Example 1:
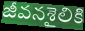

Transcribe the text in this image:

జీవనశైలికి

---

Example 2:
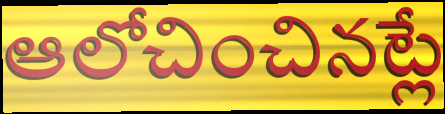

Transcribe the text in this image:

ఆలోచించినట్లే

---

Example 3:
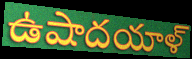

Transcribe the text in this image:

ఉషాదయాళ్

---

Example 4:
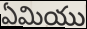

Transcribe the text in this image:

ఏమియు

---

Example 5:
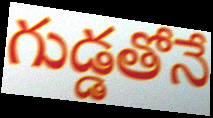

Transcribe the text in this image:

గుడ్డతోనే